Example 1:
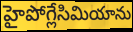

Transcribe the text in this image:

హైపోగ్లేసిమియాను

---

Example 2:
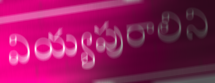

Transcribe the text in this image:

వియ్యపురాలిని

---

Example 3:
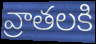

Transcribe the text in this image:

వ్రాతలకి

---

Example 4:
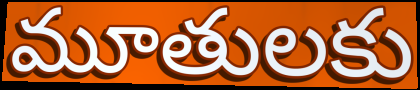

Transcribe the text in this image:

మూతులకు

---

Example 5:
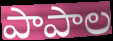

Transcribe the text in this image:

పాపాల